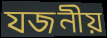
যজনীয়